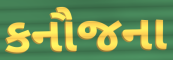
કનૌજના